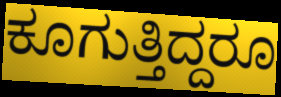
ಕೂಗುತ್ತಿದ್ದರೂ